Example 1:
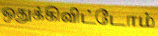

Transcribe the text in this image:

ஒதுக்கிவிட்டோம்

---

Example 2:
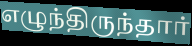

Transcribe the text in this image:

எழுந்திருந்தார்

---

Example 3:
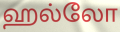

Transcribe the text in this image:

ஹல்லோ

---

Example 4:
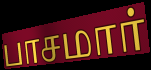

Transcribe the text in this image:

பாசமார்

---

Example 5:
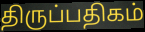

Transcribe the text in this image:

திருப்பதிகம்